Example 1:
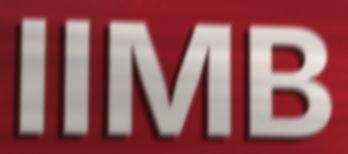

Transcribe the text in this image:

IIMB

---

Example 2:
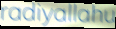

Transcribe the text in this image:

radiyallahu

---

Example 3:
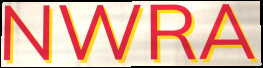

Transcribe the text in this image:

NWRA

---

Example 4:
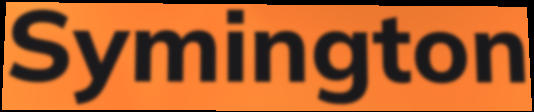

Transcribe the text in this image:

Symington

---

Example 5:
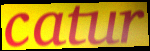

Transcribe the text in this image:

catur